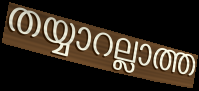
തയ്യാറല്ലാത്ത